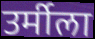
उर्मीला